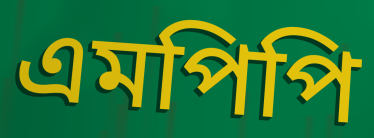
এমপিপি